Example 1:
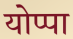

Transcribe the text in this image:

योप्पा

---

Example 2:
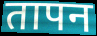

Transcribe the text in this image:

तापन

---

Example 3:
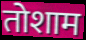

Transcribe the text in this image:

तोशाम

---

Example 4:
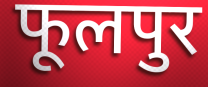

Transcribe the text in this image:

फूलपुर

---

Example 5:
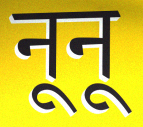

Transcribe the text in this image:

नूनू